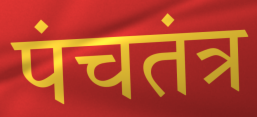
पंचतंत्र